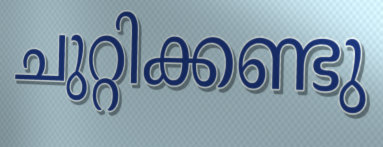
ചുറ്റിക്കണ്ടു